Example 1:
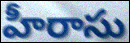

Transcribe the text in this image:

హీరాసు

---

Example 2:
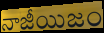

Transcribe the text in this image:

నాజీయిజం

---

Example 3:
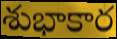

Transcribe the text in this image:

శుభాకార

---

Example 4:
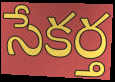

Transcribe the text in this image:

సేకర్త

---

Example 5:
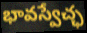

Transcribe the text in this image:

భావస్వేచ్ఛ